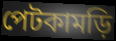
পেটকামড়ি